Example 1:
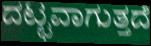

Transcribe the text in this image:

ದಟ್ಟವಾಗುತ್ತದೆ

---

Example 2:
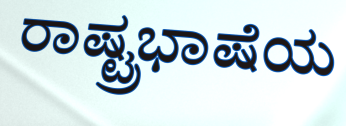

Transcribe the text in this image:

ರಾಷ್ಟ್ರಭಾಷೆಯ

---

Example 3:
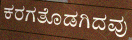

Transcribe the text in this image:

ಕರಗತೊಡಗಿದವು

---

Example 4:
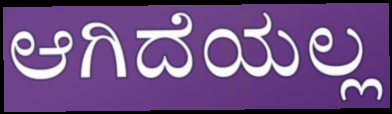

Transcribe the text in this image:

ಆಗಿದೆಯಲ್ಲ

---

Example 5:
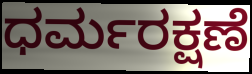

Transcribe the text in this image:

ಧರ್ಮರಕ್ಷಣೆ